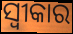
ସ୍ୱୀକାର